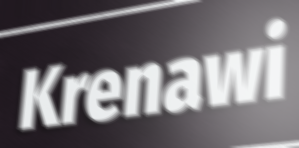
Krenawi